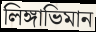
লিঙ্গাভিমান